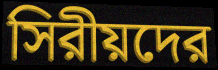
সিরীয়দের